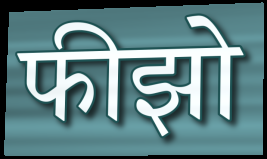
फीझो